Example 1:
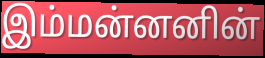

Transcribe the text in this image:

இம்மன்னனின்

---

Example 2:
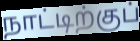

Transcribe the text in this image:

நாட்டிற்குப்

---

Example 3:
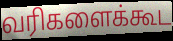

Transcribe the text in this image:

வரிகளைக்கூட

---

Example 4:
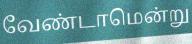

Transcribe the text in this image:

வேண்டாமென்று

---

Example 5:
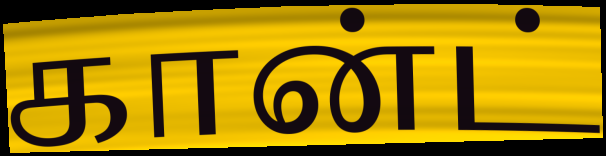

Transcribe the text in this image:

கான்ட்